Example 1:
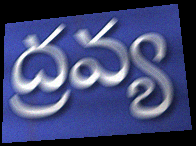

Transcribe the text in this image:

ద్రవ్య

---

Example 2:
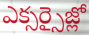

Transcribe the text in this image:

ఎక్సర్సైజ్లో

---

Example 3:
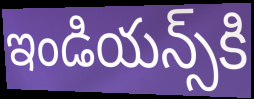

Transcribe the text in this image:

ఇండియన్స్‌కి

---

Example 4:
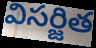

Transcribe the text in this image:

విసర్జిత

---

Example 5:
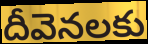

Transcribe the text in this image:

దీవెనలకు